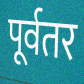
पूर्वतर